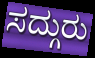
ಸದ್ಗುರು